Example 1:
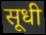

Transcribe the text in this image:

सूधी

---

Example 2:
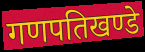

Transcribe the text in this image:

गणपतिखण्डे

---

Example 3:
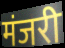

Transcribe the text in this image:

मंजरी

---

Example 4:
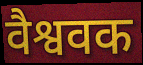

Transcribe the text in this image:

वैश्ववक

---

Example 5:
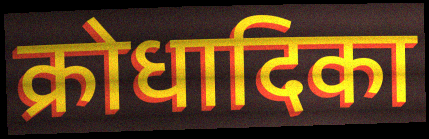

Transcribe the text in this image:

क्रोधादिका